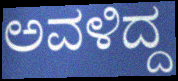
ಅವಳಿದ್ದ